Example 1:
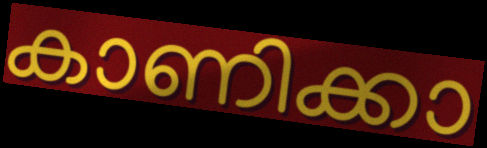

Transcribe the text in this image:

കാണിക്കാ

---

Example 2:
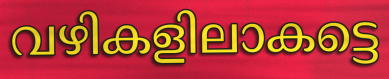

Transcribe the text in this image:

വഴികളിലാകട്ടെ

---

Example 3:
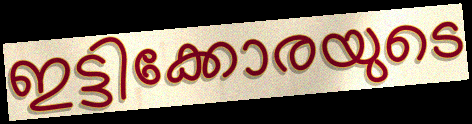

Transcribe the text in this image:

ഇട്ടിക്കോരയുടെ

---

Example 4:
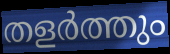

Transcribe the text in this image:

തളർത്തും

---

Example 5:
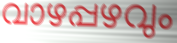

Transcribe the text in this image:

വാഴപ്പഴവും